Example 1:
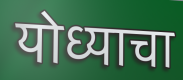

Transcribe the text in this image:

योध्याचा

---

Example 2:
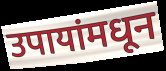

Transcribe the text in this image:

उपायांमधून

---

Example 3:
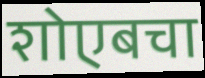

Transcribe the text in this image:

शोएबचा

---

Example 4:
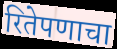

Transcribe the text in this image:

रितेपणाचा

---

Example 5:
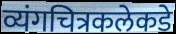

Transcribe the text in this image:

व्यंगचित्रकलेकडे